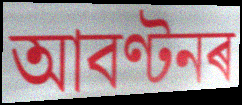
আবণ্টনৰ